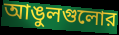
আঙুলগুলোর